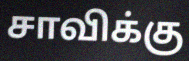
சாவிக்கு